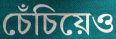
চেঁচিয়েও